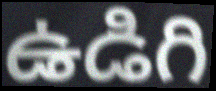
ఉడిగి